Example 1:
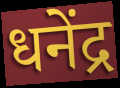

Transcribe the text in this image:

धनेंद्र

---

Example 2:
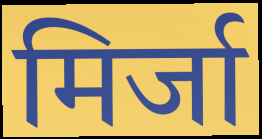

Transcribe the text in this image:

मिर्जा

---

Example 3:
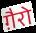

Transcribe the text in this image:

ग़ैरो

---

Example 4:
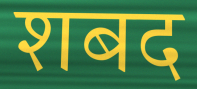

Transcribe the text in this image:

शबद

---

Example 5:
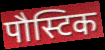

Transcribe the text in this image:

पौस्टिक